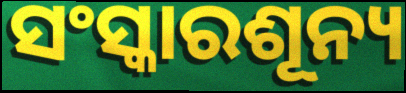
ସଂସ୍କାରଶୂନ୍ୟ